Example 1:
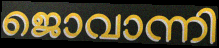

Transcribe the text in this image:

ജൊവാന്നി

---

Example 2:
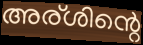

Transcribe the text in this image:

അര്ശിന്റെ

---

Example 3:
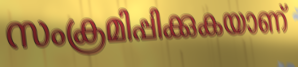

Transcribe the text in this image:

സംക്രമിപ്പിക്കുകയാണ്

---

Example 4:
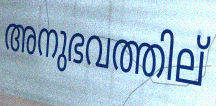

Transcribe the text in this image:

അനുഭവത്തില്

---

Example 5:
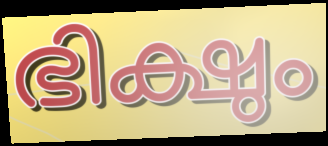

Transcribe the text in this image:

ഭിക്ഷും